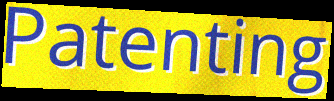
Patenting